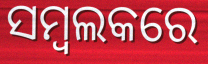
ସମ୍ବଲକରେ